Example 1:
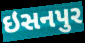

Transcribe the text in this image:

ઇસનપુર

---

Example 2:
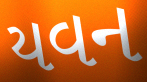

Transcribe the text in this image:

યવન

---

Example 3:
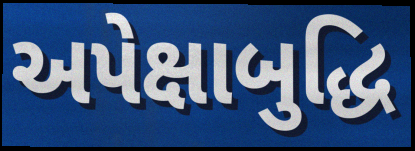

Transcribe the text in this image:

અપેક્ષાબુદ્ધિ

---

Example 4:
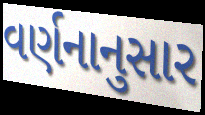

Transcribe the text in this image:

વર્ણનાનુસાર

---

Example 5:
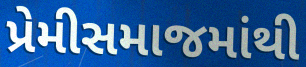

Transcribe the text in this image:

પ્રેમીસમાજમાંથી